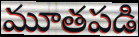
మూతపడి